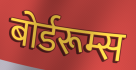
बोर्डरूम्स